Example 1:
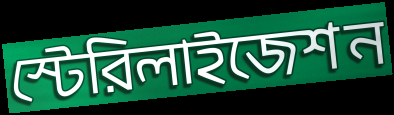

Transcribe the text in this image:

স্টেরিলাইজেশন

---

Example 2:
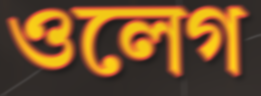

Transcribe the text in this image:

ওলেগ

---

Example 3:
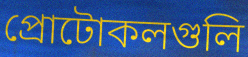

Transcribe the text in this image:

প্রোটোকলগুলি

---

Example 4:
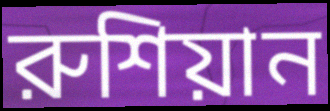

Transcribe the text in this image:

রুশিয়ান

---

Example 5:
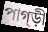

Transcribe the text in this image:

পাগ্ড়ী